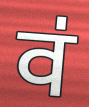
व॑